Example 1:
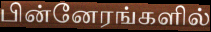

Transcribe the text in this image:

பின்னேரங்களில்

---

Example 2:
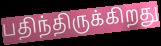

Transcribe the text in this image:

பதிந்திருக்கிறது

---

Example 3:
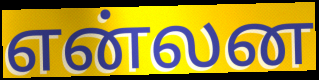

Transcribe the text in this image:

என்லன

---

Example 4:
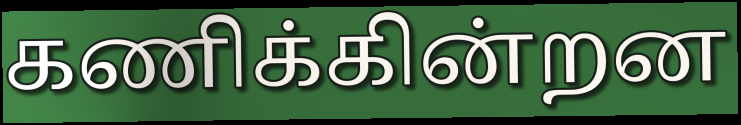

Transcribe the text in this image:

கணிக்கின்றன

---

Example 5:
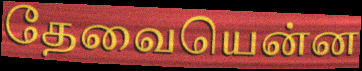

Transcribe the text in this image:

தேவையென்ன